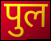
पुल